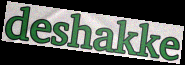
deshakke